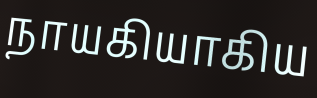
நாயகியாகிய